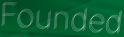
Founded